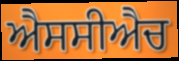
ਐਸਸੀਐਚ